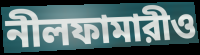
নীলফামারীও